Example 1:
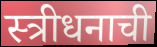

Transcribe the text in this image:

स्त्रीधनाची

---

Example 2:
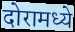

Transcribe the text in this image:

दोरामध्ये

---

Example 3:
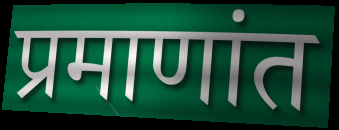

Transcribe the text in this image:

प्रमाणांत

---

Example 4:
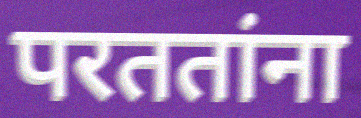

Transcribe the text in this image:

परततांना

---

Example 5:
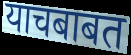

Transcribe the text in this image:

याचबाबत